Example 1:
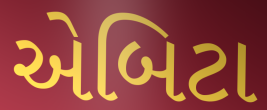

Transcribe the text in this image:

એબિટા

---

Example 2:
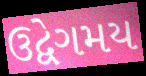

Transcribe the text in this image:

ઉદ્વેગમય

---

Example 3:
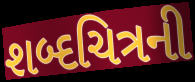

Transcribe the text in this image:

શબ્દચિત્રની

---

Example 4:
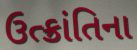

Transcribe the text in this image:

ઉત્ક્રાંતિના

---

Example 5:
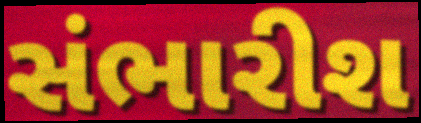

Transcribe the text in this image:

સંભારીશ